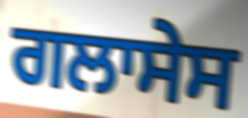
ਗਲਾਸੇਸ